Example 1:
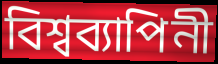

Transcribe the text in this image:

বিশ্বব্যাপিনী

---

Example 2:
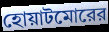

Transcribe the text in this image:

হোয়াটমোরের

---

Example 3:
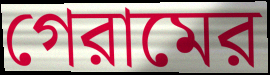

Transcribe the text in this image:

গেরামের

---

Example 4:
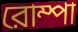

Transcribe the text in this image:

রোম্পা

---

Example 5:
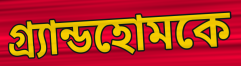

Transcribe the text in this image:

গ্র্যান্ডহোমকে